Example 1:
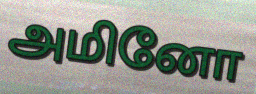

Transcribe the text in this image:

அமினோ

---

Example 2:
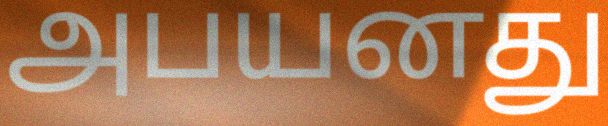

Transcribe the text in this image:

அபயனது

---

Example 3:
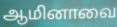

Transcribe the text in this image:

ஆமினாவை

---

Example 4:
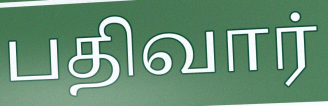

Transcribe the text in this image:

பதிவார்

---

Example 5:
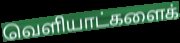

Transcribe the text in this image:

வெளியாட்களைக்